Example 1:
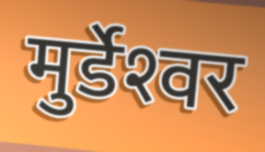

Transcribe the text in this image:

मुर्डेश्वर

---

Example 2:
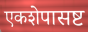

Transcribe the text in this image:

एकशेपासष्ट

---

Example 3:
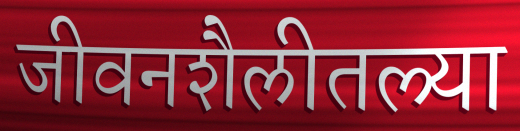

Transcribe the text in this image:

जीवनशैलीतल्या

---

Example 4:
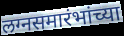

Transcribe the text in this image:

लग्नसमारंभांच्या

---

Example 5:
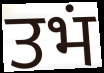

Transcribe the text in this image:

उभं